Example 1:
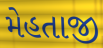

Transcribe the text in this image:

મેહતાજી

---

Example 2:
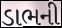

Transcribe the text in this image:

ડાભની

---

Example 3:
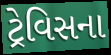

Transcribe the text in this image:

ટ્રેવિસના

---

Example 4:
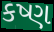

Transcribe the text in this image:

કષ્ણ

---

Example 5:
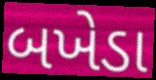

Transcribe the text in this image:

બખેડા